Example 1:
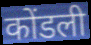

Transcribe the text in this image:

कोंडली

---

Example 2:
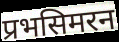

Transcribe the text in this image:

प्रभसिमरन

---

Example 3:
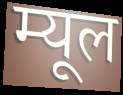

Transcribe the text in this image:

म्यूल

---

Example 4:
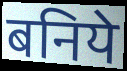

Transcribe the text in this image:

बनिये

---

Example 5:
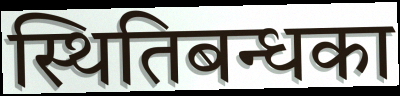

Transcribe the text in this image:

स्थितिबन्धका